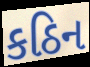
કઠિન